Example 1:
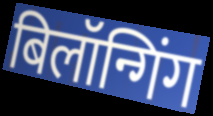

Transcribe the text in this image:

बिलॉन्गिंग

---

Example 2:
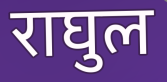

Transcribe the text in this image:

राघुल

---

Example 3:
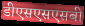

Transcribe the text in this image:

डीएसएसएसबी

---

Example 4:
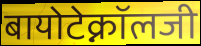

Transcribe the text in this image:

बायोटेक्नॉलजी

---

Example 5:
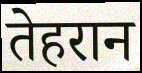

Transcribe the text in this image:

तेहरान